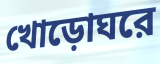
খোড়োঘরে